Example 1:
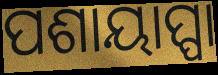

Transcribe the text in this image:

ପଶାୟାପ୍ପା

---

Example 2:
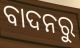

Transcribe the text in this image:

ବାଦନରୁ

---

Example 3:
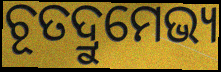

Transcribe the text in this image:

ଚୂତଦ୍ରୁମେଭ୍ୟ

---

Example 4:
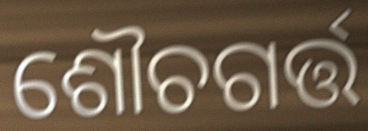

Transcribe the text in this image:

ଶୌଚଗର୍ତ୍ତ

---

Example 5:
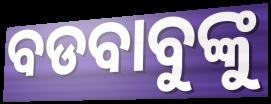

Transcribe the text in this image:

ବଡବାବୁଙ୍କୁ